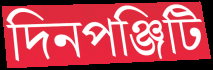
দিনপঞ্জিটি